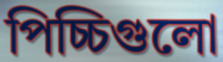
পিচ্চিগুলো